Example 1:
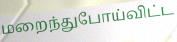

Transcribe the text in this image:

மறைந்துபோய்விட்ட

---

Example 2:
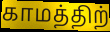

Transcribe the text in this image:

காமத்திற்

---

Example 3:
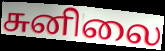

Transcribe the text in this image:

சுனிலை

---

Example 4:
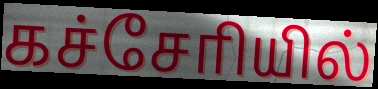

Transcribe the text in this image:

கச்சேரியில்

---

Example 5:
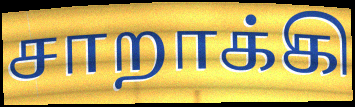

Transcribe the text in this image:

சாறாக்கி